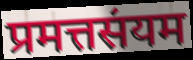
प्रमत्तसंयम